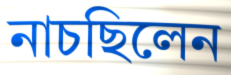
নাচছিলেন